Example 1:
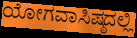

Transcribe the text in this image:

ಯೋಗವಾಸಿಷ್ಠದಲ್ಲಿ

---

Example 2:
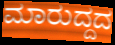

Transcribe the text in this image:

ಮಾರುದ್ದದ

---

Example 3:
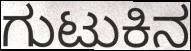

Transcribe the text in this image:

ಗುಟುಕಿನ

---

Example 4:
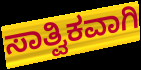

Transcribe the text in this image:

ಸಾತ್ವಿಕವಾಗಿ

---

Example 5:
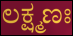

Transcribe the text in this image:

ಲಕ್ಷ್ಮಣಃ